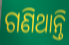
ଗଣିଥାନ୍ତି